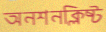
অনশনক্লিষ্ট